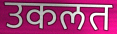
उकलत